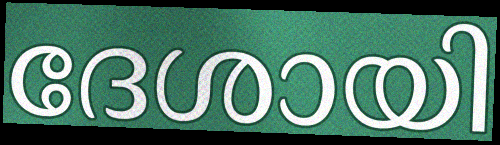
ദേശായി